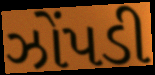
ઝોંપડી